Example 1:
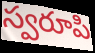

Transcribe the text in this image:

స్వరూపి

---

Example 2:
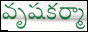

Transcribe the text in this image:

వృషకర్మా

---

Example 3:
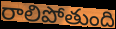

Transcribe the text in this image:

రాలిపోతుంది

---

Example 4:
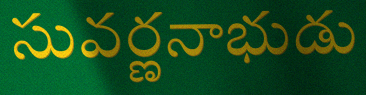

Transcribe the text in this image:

సువర్ణనాభుడు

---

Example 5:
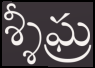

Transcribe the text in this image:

శ్శీఘ్ర